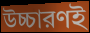
উচ্চারণই